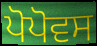
ਪੋਪੋਵਸ